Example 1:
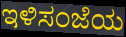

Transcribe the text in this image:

ಇಳಿಸಂಜೆಯ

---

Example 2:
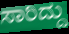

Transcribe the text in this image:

ಸಾರಿದ್ದು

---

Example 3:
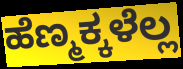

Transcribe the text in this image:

ಹೆಣ್ಮಕ್ಕಳೆಲ್ಲ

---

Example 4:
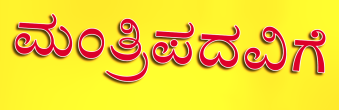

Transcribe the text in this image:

ಮಂತ್ರಿಪದವಿಗೆ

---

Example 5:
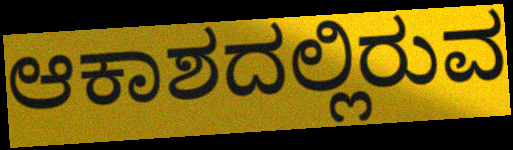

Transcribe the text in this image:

ಆಕಾಶದಲ್ಲಿರುವ